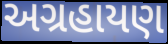
અગ્રહાયણ